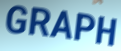
GRAPH